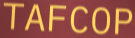
TAFCOP